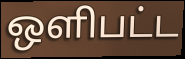
ஒளிபட்ட